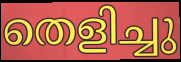
തെളിച്ചു